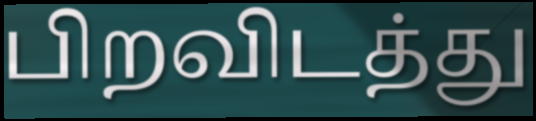
பிறவிடத்து